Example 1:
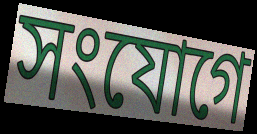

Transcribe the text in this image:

সংযোগে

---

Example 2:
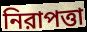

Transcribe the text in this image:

নিরাপত্তা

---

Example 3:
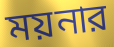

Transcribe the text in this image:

ময়নার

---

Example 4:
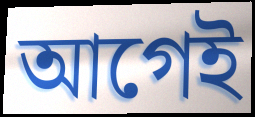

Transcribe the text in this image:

আগেই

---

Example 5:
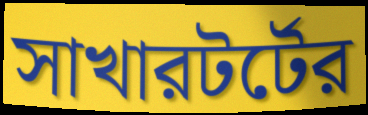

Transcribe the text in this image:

সাখারটর্টের